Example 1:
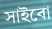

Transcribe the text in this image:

সাইবো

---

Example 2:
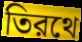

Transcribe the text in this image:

তিরথে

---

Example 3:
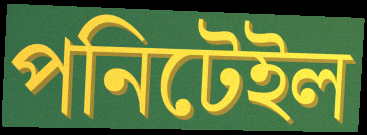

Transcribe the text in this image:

পনিটেইল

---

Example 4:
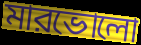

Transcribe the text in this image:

মারভোলো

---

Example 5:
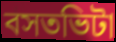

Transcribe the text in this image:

বসতভিটা